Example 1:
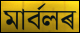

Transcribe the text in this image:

মাৰ্বলৰ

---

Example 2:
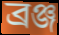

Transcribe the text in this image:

ব্ৰঞ্জ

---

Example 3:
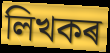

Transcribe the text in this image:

লিখকৰ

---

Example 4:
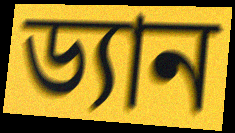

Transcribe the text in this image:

ড্যান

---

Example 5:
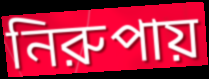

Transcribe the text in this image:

নিৰুপায়